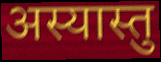
अस्यास्तु